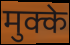
मुक्के